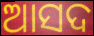
ଆସଦ